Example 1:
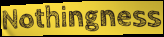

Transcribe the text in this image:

Nothingness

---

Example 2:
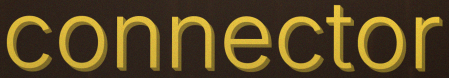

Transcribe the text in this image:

connector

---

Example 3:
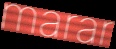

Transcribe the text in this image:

marar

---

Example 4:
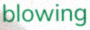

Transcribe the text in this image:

blowing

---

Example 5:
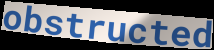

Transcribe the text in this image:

obstructed